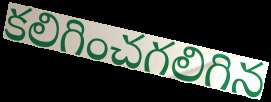
కలిగించగలిగిన